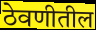
ठेवणीतील